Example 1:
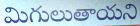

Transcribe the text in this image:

మిగులుతాయని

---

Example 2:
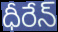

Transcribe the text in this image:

ధీరేన్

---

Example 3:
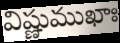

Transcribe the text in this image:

విష్ణుముఖాః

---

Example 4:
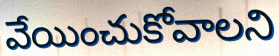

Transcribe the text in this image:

వేయించుకోవాలని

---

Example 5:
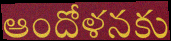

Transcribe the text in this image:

ఆందోళనకు